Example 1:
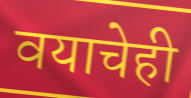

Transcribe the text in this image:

वयाचेही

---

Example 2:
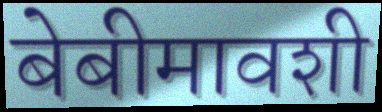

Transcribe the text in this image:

बेबीमावशी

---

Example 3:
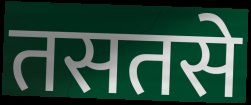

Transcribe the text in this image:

तसतसे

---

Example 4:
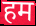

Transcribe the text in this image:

हम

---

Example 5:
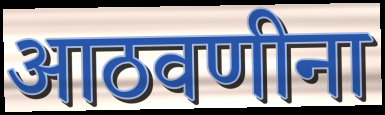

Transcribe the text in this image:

आठवणीना